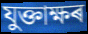
যুক্তাক্ষৰ